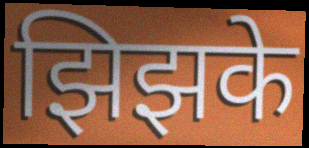
झिझके